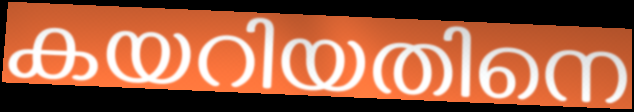
കയറിയതിനെ